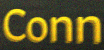
Conn